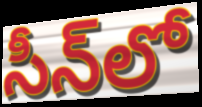
సీన్‌లో